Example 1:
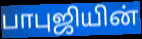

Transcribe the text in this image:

பாபுஜியின்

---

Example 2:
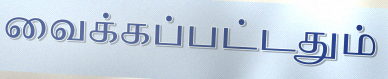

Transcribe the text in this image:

வைக்கப்பட்டதும்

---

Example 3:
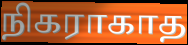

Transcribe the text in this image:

நிகராகாத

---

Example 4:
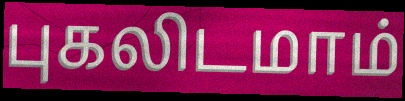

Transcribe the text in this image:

புகலிடமாம்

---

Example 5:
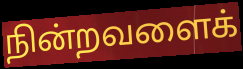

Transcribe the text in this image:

நின்றவளைக்